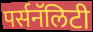
पर्सनॅलिटी